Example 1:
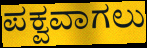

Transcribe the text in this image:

ಪಕ್ವವಾಗಲು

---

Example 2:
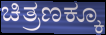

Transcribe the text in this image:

ಚಿತ್ರಣಕ್ಕೂ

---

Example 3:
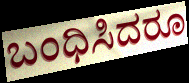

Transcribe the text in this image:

ಬಂಧಿಸಿದರೂ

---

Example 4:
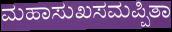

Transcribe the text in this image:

ಮಹಾಸುಖಸಮಪ್ಪಿತಾ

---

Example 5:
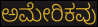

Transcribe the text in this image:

ಅಮೇರಿಕವು